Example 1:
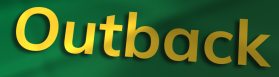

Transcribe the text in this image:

Outback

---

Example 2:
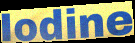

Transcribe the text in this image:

Iodine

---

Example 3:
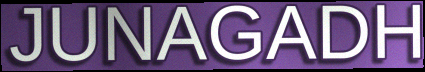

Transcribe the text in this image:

JUNAGADH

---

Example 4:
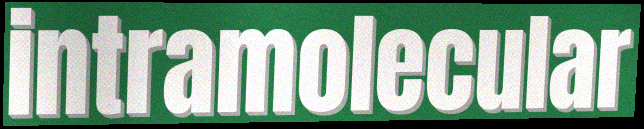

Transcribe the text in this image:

intramolecular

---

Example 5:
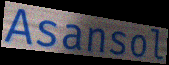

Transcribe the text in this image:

Asansol